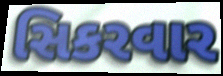
સિકરવાર